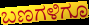
ಬಣಗಳಿಗೂ